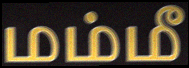
மம்மீ